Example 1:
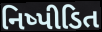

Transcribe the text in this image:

નિષ્પીડિત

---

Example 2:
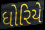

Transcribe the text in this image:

ધોરિયે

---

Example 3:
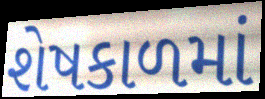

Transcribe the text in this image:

શેષકાળમાં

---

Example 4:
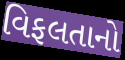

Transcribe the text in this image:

વિફલતાનો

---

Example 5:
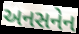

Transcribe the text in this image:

અનસનેન